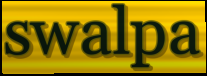
swalpa